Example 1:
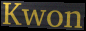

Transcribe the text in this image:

Kwon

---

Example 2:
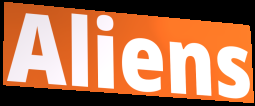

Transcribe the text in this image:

Aliens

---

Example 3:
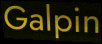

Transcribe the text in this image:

Galpin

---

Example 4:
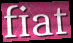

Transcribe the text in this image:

fiat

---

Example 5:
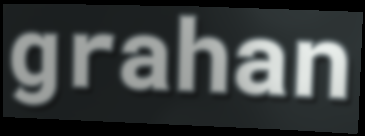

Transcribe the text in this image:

grahan